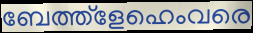
ബേത്ത്ളേഹെംവരെ